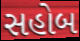
સહોબ